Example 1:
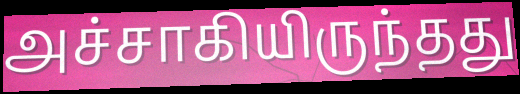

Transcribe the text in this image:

அச்சாகியிருந்தது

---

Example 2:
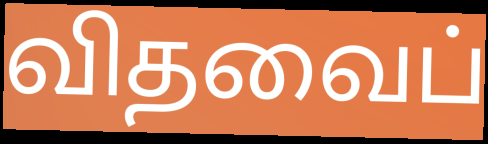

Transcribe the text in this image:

விதவைப்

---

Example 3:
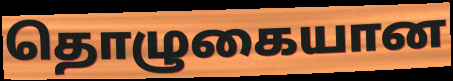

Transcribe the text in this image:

தொழுகையான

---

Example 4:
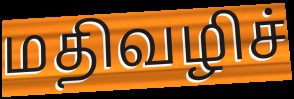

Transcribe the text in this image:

மதிவழிச்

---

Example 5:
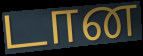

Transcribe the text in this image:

டான